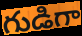
గుడిగా